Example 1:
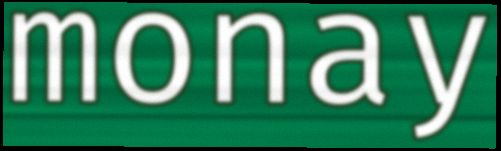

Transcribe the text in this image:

monay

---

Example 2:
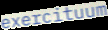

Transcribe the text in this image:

exercituum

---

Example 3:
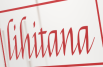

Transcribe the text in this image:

lihitana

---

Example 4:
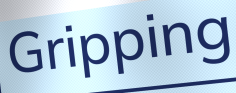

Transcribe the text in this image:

Gripping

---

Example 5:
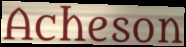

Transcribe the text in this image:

Acheson